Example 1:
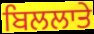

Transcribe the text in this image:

ਬਿਲਲਾਤੇ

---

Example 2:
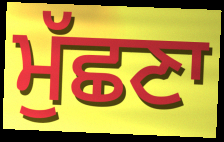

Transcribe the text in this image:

ਮੁੱਛਣਾ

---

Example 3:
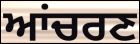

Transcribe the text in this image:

ਆਂਚਰਣ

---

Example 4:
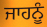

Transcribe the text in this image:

ਜਾਹਨੂੰ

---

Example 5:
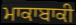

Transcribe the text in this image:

ਮਾਕਾਬਾਕੀ